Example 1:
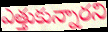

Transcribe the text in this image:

ఎత్తుకున్నారని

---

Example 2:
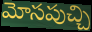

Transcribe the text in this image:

మోసపుచ్చి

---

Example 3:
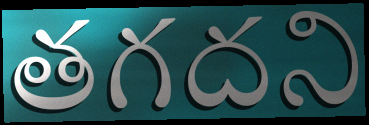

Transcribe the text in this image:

తగదని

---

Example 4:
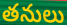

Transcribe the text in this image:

తనులు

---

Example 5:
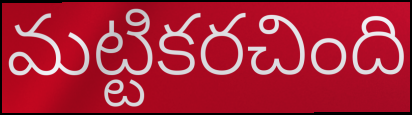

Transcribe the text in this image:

మట్టికరచింది